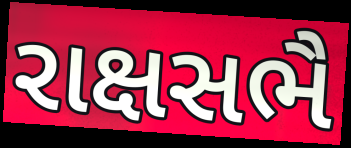
રાક્ષસભૈ